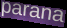
parana